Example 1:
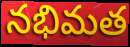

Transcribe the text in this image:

నభిమత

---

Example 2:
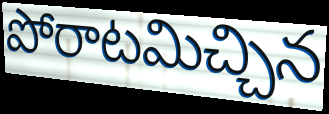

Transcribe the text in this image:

పోరాటమిచ్చిన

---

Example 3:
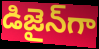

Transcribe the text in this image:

డిజైన్‌గా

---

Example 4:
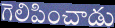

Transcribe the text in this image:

గెలిపించాడు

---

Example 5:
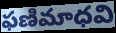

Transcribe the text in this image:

ఫణిమాధవి